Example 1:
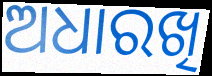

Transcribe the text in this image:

ଅଧାରଖି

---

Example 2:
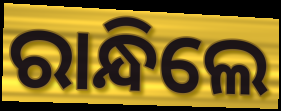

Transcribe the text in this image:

ରାନ୍ଧିଲେ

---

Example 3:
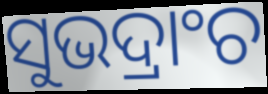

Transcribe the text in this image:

ସୁଭଦ୍ରାଂଚ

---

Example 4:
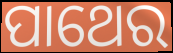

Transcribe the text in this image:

ପାଥେର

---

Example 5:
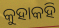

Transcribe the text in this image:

କୁହାକହି